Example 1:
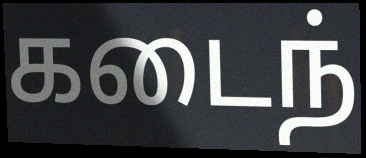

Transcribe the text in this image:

கடைந்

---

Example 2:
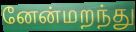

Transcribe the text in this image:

னேன்மறந்து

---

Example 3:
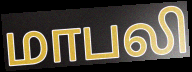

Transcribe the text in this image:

மாபலி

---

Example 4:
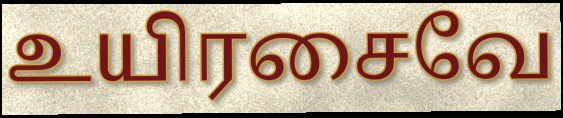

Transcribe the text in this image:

உயிரசைவே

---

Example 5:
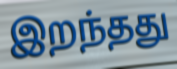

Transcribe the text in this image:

இறந்தது